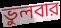
ভুলবার